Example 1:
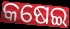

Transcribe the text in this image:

କଷେଇ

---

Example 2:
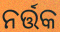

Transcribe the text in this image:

ନର୍ତ୍ତକ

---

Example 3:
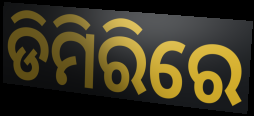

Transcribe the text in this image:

ଡିମିରିରେ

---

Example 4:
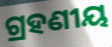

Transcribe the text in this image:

ଗ୍ରହଣୀୟ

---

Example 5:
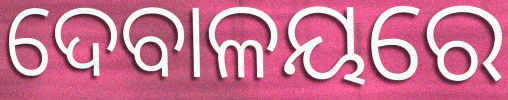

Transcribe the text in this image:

ଦେବାଳୟରେ